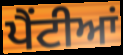
ਪੈਂਟੀਆਂ